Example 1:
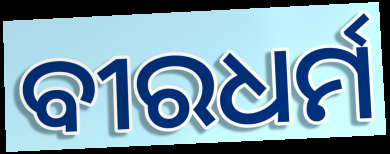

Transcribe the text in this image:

ବୀରଧର୍ମ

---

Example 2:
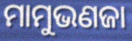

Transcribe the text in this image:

ମାମୁଭଣଜା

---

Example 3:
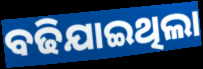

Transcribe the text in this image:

ବଢିଯାଇଥିଲା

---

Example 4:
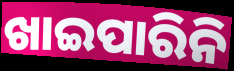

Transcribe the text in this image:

ଖାଇପାରିନି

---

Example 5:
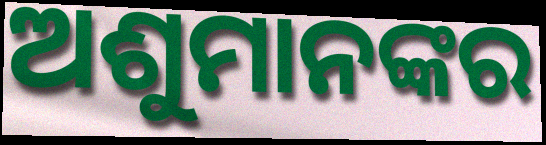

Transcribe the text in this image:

ଅଶୁମାନଙ୍କର